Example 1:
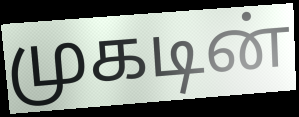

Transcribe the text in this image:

முகடின்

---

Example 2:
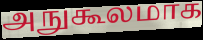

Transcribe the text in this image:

அநுகூலமாக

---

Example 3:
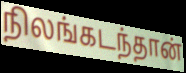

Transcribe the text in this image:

நிலங்கடந்தான்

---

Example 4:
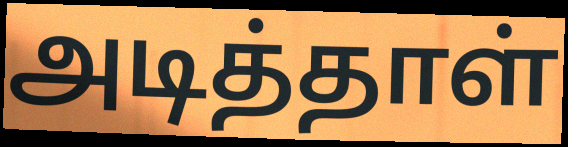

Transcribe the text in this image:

அடித்தாள்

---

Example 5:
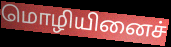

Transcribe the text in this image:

மொழியினைச்